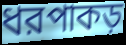
ধরপাকড়